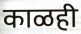
काळही